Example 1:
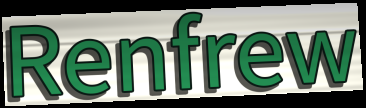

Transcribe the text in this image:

Renfrew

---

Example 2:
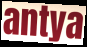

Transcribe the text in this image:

antya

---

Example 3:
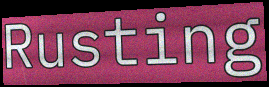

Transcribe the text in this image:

Rusting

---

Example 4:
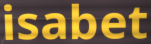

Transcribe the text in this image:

isabet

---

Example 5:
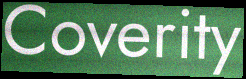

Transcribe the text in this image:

Coverity